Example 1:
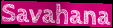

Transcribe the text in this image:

Savahana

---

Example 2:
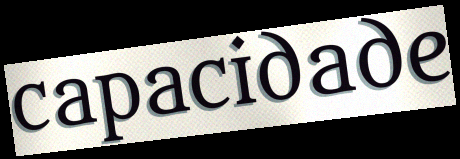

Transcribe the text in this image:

capacidade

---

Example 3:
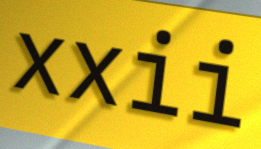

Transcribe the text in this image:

xxii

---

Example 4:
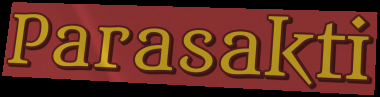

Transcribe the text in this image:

Parasakti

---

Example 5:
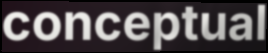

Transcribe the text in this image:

conceptual